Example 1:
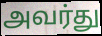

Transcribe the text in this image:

அவர்து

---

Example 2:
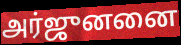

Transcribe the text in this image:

அர்ஜுனனை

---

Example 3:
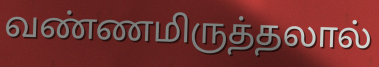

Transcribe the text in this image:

வண்ணமிருத்தலால்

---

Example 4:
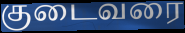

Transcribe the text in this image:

குடைவரை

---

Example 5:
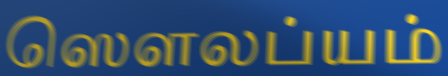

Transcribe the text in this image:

ஸௌலப்யம்